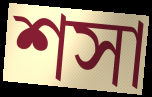
শসা